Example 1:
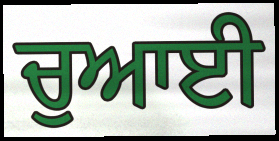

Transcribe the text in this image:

ਚੁਆਈ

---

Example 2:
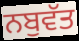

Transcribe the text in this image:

ਨਬੁਵੱਤ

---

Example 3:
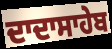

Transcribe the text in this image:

ਦਾਦਾਸਾਹੇਬ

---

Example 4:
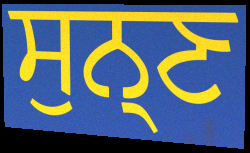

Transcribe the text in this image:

ਸੁਨ੍ਣ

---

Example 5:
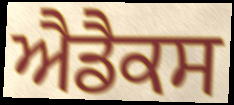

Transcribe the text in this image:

ਐਡੈਕਸ